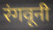
रंगवूनी